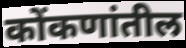
कोंकणांतील